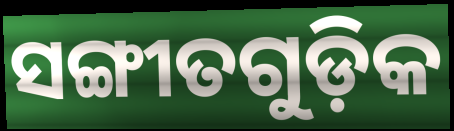
ସଙ୍ଗୀତଗୁଡ଼ିକ